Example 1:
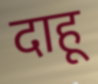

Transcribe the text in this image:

दाहू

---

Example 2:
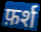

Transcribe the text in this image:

फ़र्श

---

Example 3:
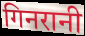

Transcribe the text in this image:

गिनरानी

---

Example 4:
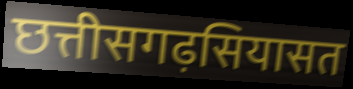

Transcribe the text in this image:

छत्तीसगढ़सियासत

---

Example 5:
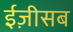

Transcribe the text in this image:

ईज़ीसब